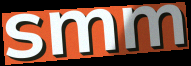
smm